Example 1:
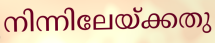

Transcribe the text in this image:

നിന്നിലേയ്ക്കതു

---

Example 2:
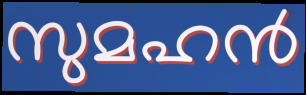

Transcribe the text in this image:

സുമഹൻ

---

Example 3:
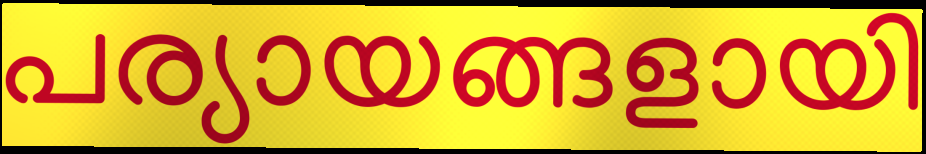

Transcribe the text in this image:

പര്യായങ്ങളായി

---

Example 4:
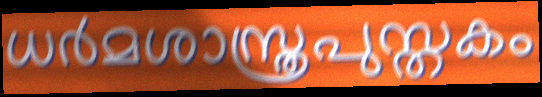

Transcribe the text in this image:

ധർമശാസ്ത്രപുസ്തകം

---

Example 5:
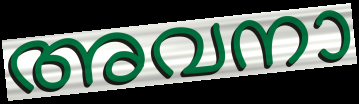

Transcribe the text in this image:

അവനാ